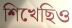
শিখেছিও